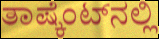
ತಾಷ್ಕೆಂಟ್‌ನಲ್ಲಿ